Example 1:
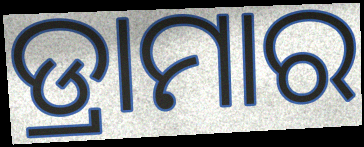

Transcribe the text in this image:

ଡ୍ରାମାର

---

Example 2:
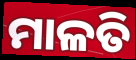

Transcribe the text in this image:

ମାଳତି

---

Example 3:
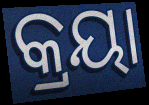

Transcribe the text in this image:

କ୍ରୟା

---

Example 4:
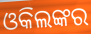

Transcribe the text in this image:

ଓକିଲଙ୍କର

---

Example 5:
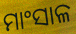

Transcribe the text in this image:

ମାଂସାଳ